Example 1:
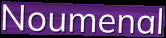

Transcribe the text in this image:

Noumenal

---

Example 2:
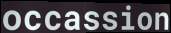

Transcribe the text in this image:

occassion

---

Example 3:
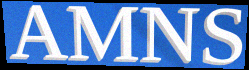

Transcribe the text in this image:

AMNS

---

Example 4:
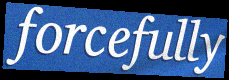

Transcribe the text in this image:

forcefully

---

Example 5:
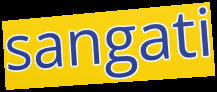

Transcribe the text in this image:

sangati